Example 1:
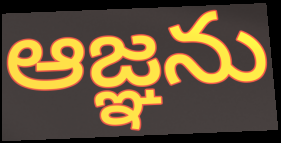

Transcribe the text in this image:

ఆజ్ఞను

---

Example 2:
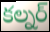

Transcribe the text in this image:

కల్నర్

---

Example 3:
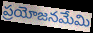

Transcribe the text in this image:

ప్రయోజనమేమి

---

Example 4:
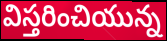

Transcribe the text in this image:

విస్తరించియున్న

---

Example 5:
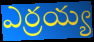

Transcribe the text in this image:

ఎర్రయ్య